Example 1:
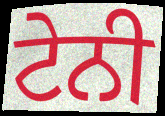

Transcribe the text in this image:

ਟੇਨੀ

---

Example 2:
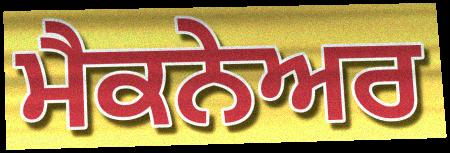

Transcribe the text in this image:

ਮੈਕਨੇਅਰ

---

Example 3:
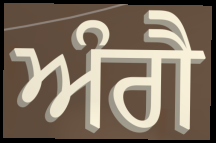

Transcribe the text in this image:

ਅੰਗੈ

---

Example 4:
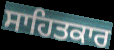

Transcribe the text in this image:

ਸਾਹਿਤਕਾਰ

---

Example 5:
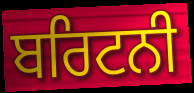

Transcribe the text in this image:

ਬਰਿਟਨੀ